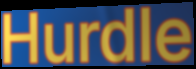
Hurdle